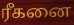
ரீகனை